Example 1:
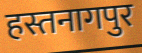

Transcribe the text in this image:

हस्तनागपुर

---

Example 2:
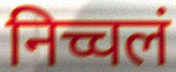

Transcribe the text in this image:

निच्चलं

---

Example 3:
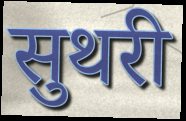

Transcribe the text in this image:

सुथरी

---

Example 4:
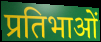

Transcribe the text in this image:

प्रतिभाओं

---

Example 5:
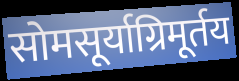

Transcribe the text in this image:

सोमसूर्याग्रिमूर्तय